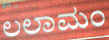
ಲಲಾಮಂ